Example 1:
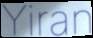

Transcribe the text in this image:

Yiran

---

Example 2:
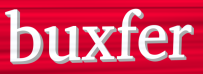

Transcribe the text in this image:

buxfer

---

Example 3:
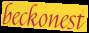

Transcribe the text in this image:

beckonest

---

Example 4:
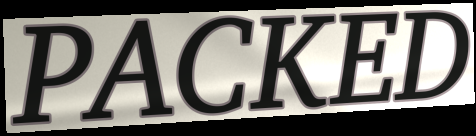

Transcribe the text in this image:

PACKED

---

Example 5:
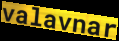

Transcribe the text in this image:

valavnar